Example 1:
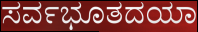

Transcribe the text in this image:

ಸರ್ವಭೂತದಯಾ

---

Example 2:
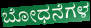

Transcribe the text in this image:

ಬೋಧನೆಗಳ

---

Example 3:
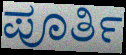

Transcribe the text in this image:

ಪೂರ್ತಿ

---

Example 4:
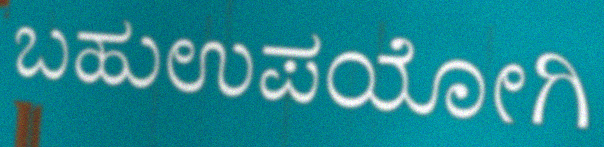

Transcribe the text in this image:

ಬಹುಉಪಯೋಗಿ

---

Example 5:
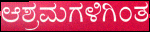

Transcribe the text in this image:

ಆಶ್ರಮಗಳಿಗಿಂತ